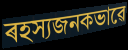
ৰহস্যজনকভাৱে